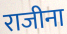
राजीना